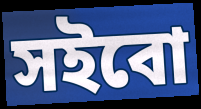
সইবো